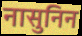
नासुनिन